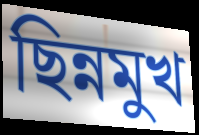
ছিন্নমুখ